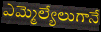
ఎమ్మెల్యేలుగానే